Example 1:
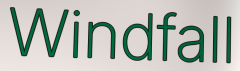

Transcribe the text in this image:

Windfall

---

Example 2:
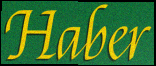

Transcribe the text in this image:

Haber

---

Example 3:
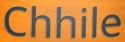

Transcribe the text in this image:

Chhile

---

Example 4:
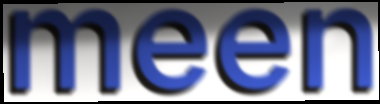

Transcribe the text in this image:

meen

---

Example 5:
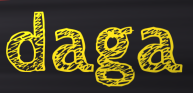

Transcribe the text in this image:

daga